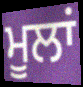
ਮੂਲਾਂ